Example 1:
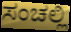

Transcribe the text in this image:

ಸಂಚಲ್ಲಿ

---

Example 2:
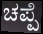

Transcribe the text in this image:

ಚಪ್ಪೆ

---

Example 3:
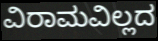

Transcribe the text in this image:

ವಿರಾಮವಿಲ್ಲದ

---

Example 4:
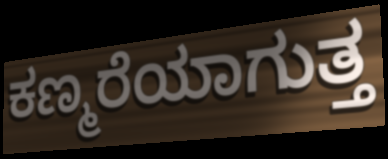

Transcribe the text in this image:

ಕಣ್ಮರೆಯಾಗುತ್ತ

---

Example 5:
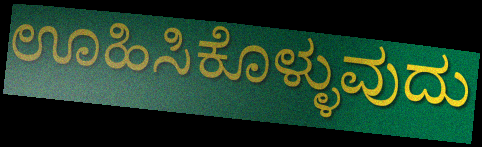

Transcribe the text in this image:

ಊಹಿಸಿಕೊಳ್ಳುವುದು